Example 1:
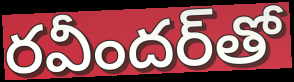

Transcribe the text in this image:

రవీందర్‌తో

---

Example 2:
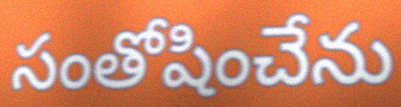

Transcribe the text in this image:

సంతోషించేను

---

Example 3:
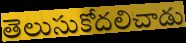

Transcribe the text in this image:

తెలుసుకోదలిచాడు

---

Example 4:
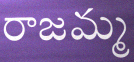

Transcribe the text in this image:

రాజమ్మ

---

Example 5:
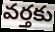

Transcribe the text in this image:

వర్తకు